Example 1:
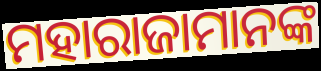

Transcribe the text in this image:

ମହାରାଜାମାନଙ୍କ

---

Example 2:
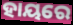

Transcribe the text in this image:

ହାୟରେ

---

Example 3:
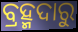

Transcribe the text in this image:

ବ୍ରହ୍ମଦାରୁ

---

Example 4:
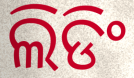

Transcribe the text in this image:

ଲିଡିଂ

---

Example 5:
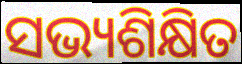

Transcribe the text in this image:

ସଭ୍ୟଶିକ୍ଷିତ